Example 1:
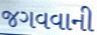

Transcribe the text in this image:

જગવવાની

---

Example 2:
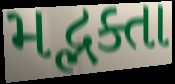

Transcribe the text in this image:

મદ્ભક્તા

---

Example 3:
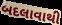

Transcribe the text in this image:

બદલાવાથી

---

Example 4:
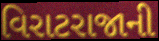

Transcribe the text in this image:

વિરાટરાજાની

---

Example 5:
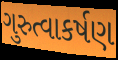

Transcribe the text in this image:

ગુરુત્વાકર્ષણ